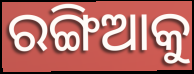
ରଙ୍ଗିଆକୁ